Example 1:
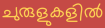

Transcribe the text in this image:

ചുരുളുകളിൽ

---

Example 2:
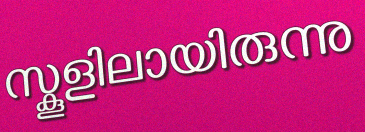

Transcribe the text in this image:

സ്കൂളിലായിരുന്നു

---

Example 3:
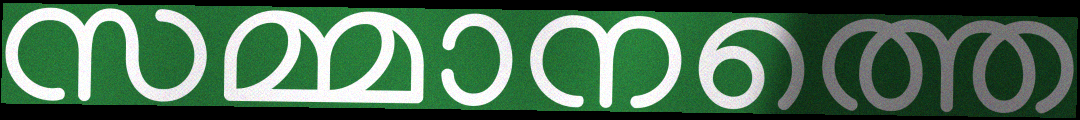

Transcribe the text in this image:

സമ്മാനത്തെ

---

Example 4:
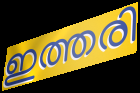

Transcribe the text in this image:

ഇത്തരി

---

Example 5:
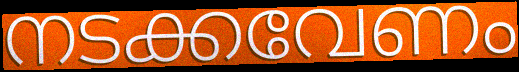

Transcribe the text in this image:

നടക്കവേണം